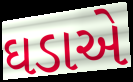
ઘડાએ